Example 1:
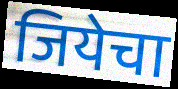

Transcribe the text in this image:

जियेचा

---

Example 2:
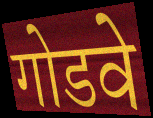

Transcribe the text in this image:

गोडवे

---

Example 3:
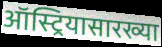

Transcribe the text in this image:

ऑस्ट्रियासारख्या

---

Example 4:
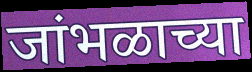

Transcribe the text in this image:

जांभळाच्या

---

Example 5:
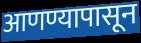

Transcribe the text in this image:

आणण्यापासून